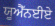
ਯੂਐੱਨਈਏ